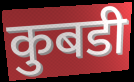
कुबडी